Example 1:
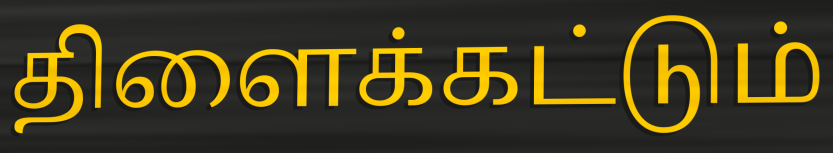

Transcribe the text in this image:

திளைக்கட்டும்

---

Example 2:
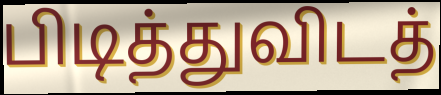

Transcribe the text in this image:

பிடித்துவிடத்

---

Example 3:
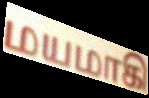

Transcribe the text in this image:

மயமாகி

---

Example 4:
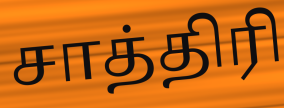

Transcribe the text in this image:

சாத்திரி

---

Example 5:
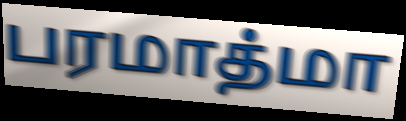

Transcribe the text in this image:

பரமாத்மா